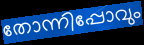
തോന്നിപ്പോവും